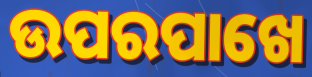
ଉପରପାଖେ